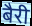
बैरी